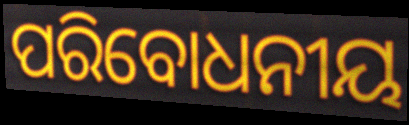
ପରିବୋଧନୀୟ